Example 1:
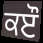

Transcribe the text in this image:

ਕੲੌ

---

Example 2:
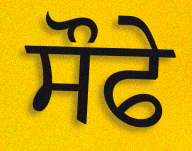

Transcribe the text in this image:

ਸੌਫੇ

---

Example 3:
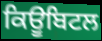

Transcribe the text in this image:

ਕਿਊਬਿਟਲ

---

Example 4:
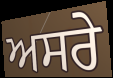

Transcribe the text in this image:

ਅਸਰੇ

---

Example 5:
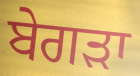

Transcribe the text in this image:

ਬੇਗੜਾ